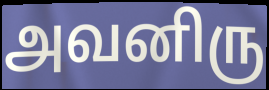
அவனிரு